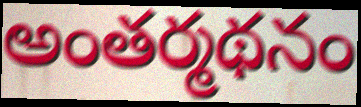
అంతర్మథనం